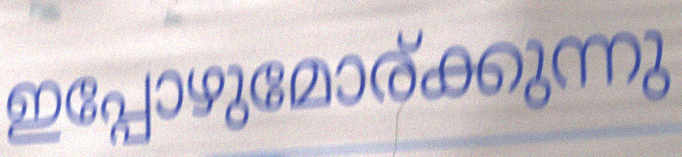
ഇപ്പോഴുമോര്ക്കുന്നു